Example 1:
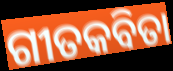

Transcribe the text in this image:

ଗୀତକବିତା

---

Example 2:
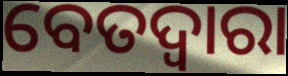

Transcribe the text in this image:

ବେତଦ୍ୱାରା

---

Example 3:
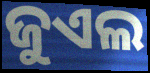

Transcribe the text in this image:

ଜୁଏଲ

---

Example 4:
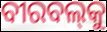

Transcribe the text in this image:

ବୀରବଲ୍‌କୁ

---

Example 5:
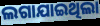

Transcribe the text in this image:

ଲଗାଯାଇଥିଲା